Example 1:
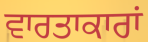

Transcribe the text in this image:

ਵਾਰਤਾਕਾਰਾਂ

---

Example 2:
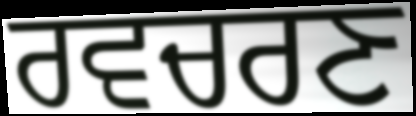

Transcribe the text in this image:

ਰਵਚਰਣ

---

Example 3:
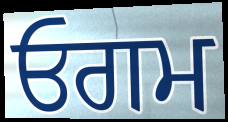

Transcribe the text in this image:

ਓਗਮ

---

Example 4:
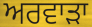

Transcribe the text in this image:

ਅਰਵਾੜਾ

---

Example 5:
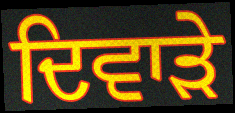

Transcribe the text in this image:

ਦਿਵਾੜੇ